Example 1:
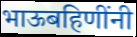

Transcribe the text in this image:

भाऊबहिणींनी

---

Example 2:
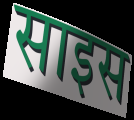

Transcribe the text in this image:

साइस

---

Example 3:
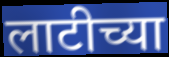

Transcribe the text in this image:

लाटीच्या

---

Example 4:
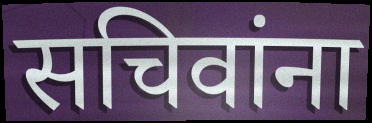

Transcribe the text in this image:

सचिवांना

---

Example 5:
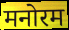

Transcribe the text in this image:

मनोरम